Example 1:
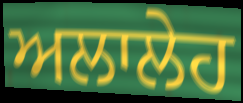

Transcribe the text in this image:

ਅਲਾਲੇਹ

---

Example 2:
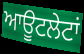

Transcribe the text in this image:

ਆਊਟਲੇਟਾਂ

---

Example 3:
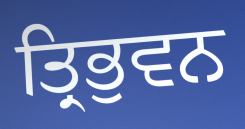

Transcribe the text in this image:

ਤ੍ਰਿਭੁਵਨ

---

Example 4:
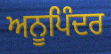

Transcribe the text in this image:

ਅਨੂਪਿੰਦਰ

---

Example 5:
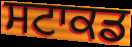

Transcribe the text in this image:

ਸਟਾਕਡ